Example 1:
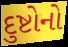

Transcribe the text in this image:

દુષ્ટોનો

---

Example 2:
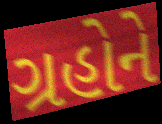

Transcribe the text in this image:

ગ્રહોને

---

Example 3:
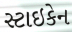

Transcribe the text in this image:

સ્ટાઇકેન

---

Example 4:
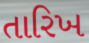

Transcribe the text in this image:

તારિખ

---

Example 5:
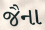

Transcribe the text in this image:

જૈના